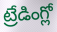
ట్రేడింగ్లో